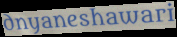
dnyaneshawari